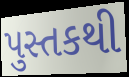
પુસ્તકથી